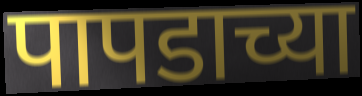
पापडाच्या